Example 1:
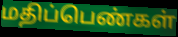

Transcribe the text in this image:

மதிப்பெண்கள்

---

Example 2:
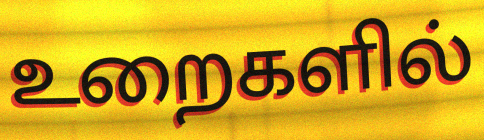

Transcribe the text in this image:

உறைகளில்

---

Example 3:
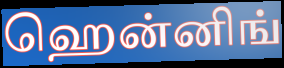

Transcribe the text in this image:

ஹென்னிங்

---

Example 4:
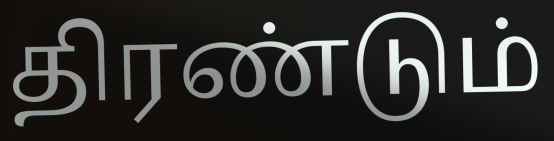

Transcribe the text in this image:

திரண்டும்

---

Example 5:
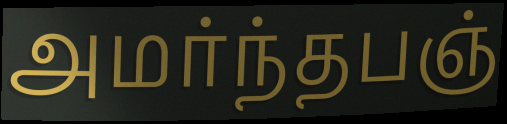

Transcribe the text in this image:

அமர்ந்தபஞ்